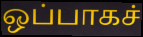
ஒப்பாகச்